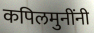
कपिलमुनींनी